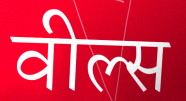
वील्स